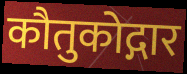
कौतुकोद्गार